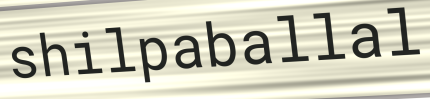
shilpaballal